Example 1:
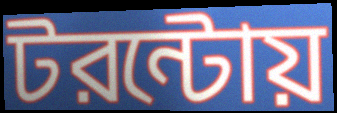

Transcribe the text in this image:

টরন্টোয়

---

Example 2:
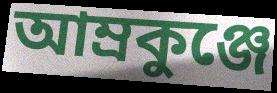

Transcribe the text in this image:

আম্রকুঞ্জে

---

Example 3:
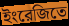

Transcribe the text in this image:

ইংরেজিতে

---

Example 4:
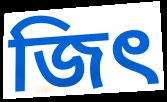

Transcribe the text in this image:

জিৎ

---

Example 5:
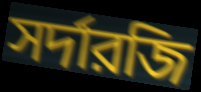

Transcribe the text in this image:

সর্দারজি